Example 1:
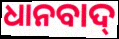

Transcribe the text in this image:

ଧାନବାଦ୍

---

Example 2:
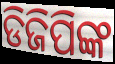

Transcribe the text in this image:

ଡିଜିପିଙ୍କ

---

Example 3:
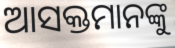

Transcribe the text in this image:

ଆସକ୍ତମାନଙ୍କୁ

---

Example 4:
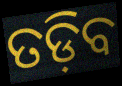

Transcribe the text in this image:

ତଡ଼ିବ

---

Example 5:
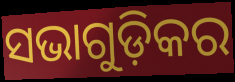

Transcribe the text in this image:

ସଭାଗୁଡ଼ିକର